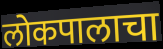
लोकपालाचा